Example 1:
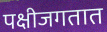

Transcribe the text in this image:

पक्षीजगतात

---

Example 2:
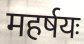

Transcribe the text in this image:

महर्षयः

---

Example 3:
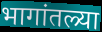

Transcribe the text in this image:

भागांतल्या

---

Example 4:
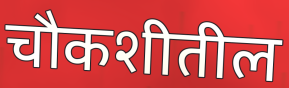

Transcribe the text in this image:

चौकशीतील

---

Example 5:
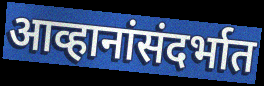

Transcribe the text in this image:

आव्हानांसंदर्भात